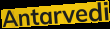
Antarvedi